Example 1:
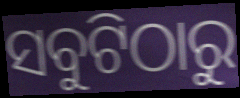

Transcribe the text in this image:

ସବୁଟିଠାରୁ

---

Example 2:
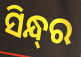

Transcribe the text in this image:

ସିନ୍ଧ୍‌ର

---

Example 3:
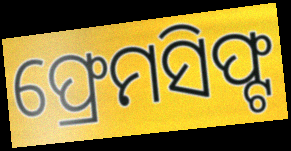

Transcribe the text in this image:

ଫ୍ରେମସିଫ୍ଟ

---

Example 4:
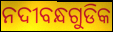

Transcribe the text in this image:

ନଦୀବନ୍ଧଗୁଡିକ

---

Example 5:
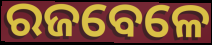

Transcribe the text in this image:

ରଜବେଳେ